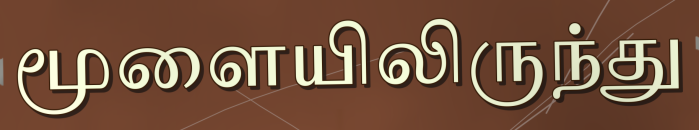
மூளையிலிருந்து